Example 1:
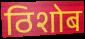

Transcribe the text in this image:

ठिशोब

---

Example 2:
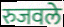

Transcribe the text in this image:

रुजवले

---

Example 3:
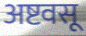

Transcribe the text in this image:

अष्टवसू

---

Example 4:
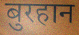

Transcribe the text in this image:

बुरहान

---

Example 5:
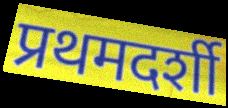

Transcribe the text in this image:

प्रथमदर्शी